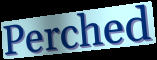
Perched